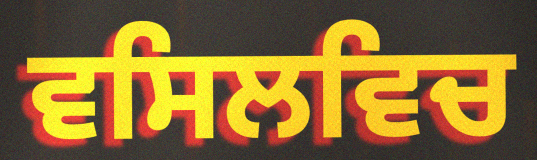
ਵਸਿਲਵਿਚ